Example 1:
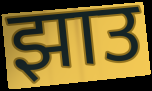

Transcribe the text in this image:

झाउ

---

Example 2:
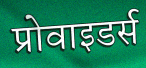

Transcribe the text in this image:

प्रोवाइडर्स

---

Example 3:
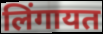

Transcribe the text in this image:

लिंगायत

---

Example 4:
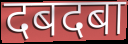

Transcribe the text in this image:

दबदबा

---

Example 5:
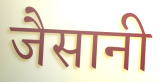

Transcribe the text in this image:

जैसानी